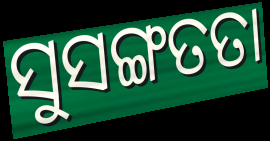
ସୁସଙ୍ଗତତା